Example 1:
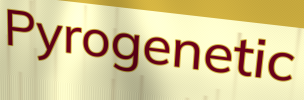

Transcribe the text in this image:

Pyrogenetic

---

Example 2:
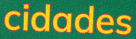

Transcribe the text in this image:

cidades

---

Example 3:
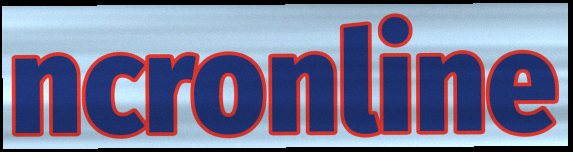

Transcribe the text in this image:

ncronline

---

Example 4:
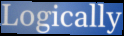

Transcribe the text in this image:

Logically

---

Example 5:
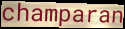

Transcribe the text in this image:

champaran